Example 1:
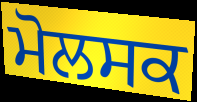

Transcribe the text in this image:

ਮੋਲਸਕ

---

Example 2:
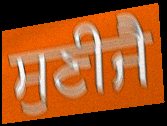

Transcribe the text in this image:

ਸੁਣੀਜੈ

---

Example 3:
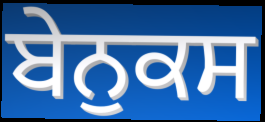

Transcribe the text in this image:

ਬੇਨੁਕਸ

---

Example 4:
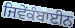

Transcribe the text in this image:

ਜਿਵੇਂਕੰਬਾਈਨ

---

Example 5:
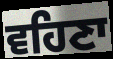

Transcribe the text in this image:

ਵਹਿਣਾ